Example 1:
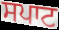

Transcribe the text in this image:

ਸਪਾਟ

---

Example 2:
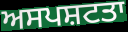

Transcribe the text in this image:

ਅਸਪਸ਼ਟਤਾ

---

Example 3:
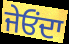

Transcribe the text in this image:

ਜੇਓੰਦਾ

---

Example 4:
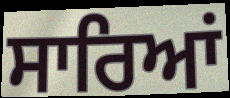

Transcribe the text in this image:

ਸਾਰਿਆਂ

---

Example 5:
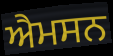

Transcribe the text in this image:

ਐਮਸਨ